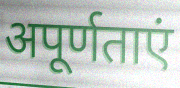
अपूर्णताएं